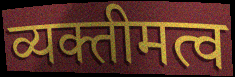
व्यक्तीमत्व